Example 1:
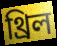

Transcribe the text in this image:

থ্রিল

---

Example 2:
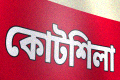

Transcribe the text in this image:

কোটশিলা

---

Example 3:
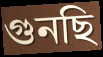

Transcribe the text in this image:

গুনছি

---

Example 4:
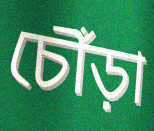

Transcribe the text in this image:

চৌঁড়া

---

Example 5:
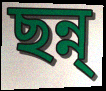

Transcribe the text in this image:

ছন্ন্